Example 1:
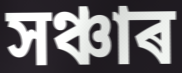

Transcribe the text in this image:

সঞ্চাৰ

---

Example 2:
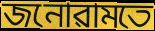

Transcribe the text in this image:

জনোৱামতে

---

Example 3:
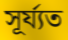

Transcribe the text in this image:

সূৰ্য্যত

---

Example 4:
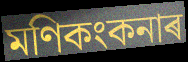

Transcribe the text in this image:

মণিকংকনাৰ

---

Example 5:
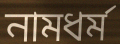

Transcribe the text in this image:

নামধৰ্ম